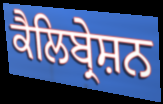
ਕੈਲਿਬ੍ਰੇਸ਼ਨ